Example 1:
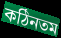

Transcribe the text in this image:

কঠিনতম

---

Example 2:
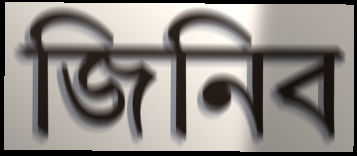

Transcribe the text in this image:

জিনিব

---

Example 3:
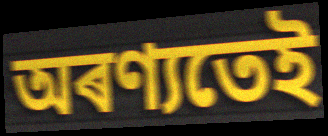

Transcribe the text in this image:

অৰণ্যতেই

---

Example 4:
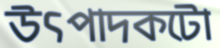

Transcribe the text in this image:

উৎপাদকটো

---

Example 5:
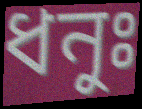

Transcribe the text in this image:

ধনুঃ